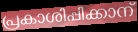
പ്രകാശിപ്പിക്കാന്